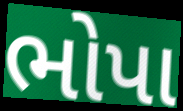
ભોપા